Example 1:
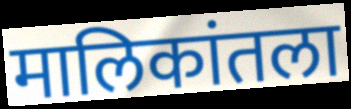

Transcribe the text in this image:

मालिकांतला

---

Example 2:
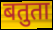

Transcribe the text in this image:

बतुता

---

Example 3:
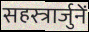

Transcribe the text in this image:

सहस्त्रार्जुनें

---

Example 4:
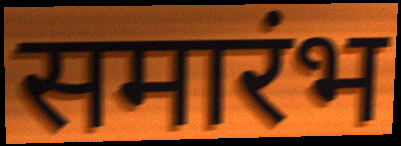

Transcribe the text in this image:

समारंभ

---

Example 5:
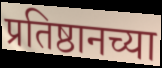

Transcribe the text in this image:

प्रतिष्ठानच्या